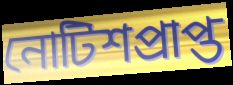
নোটিশপ্রাপ্ত